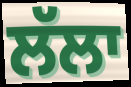
ਲੱਲਾ